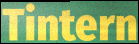
Tintern